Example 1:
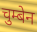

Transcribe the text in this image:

चुम्बेन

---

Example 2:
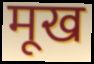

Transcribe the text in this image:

मूख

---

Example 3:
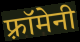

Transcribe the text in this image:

फ़्रॉमेनी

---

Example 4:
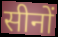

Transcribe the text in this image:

सीनों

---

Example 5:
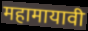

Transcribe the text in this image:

महामायावी